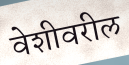
वेशीवरील